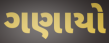
ગણાયો